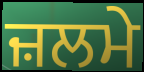
ਜ਼ਲਮੇ